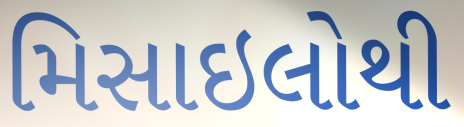
મિસાઇલોથી